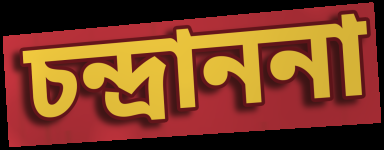
চন্দ্রাননা